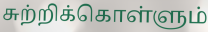
சுற்றிக்கொள்ளும்